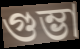
গুম্ভা